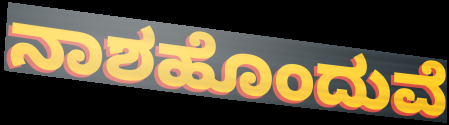
ನಾಶಹೊಂದುವೆ